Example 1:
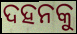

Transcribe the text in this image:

ଦହନକୁ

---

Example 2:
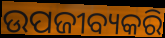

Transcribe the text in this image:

ଉପଜୀବ୍ୟକରି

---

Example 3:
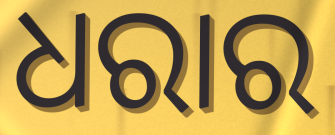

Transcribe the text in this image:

ଧରାର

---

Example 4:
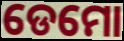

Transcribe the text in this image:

ଡେମୋ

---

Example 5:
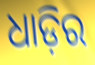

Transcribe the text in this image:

ଧାଡ଼ିର